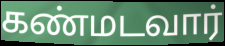
கண்மடவார்